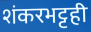
शंकरभट्टही